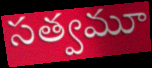
సత్వమూ